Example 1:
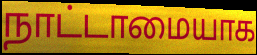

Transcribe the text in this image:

நாட்டாமையாக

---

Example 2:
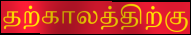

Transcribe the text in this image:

தற்காலத்திற்கு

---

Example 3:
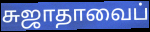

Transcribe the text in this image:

சுஜாதாவைப்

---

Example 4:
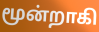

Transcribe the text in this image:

மூன்றாகி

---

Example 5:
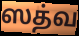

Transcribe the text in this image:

ஸத்வ